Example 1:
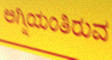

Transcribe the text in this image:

ಅಗ್ನಿಯಂತಿರುವ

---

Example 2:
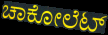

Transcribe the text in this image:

ಚಾಕೋಲೆಟ್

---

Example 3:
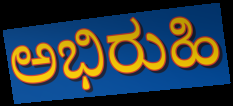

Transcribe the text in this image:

ಅಭಿರುಹಿ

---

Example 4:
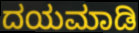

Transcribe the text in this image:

ದಯಮಾಡಿ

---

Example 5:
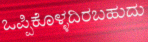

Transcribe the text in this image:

ಒಪ್ಪಿಕೊಳ್ಳದಿರಬಹುದು